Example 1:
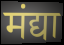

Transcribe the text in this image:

मंद्या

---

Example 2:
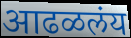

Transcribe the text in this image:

आढळलंय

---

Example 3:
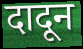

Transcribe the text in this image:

दादून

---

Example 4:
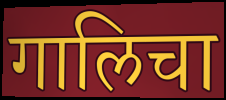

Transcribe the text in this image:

गालिचा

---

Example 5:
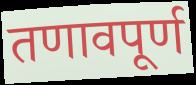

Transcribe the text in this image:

तणावपूर्ण